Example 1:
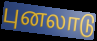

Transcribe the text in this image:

புனலாடு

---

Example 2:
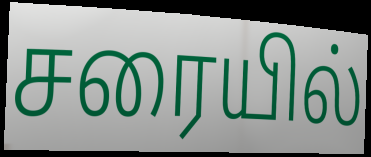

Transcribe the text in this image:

சரையில்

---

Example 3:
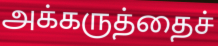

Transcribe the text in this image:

அக்கருத்தைச்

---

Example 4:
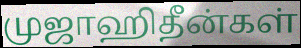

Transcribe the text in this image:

முஜாஹிதீன்கள்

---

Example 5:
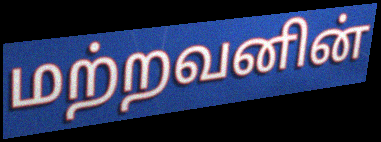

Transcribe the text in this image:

மற்றவனின்